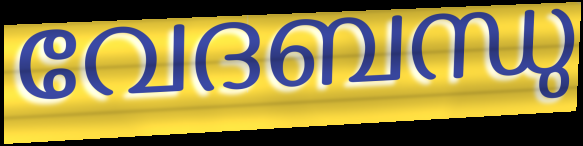
വേദബന്ധു